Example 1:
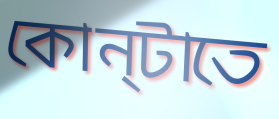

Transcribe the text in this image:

কোন্‌টাতে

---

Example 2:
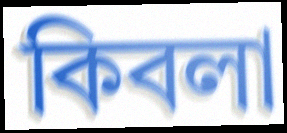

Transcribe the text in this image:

কিবলা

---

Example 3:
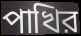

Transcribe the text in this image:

পাখির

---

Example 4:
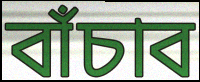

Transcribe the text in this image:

বাঁচাব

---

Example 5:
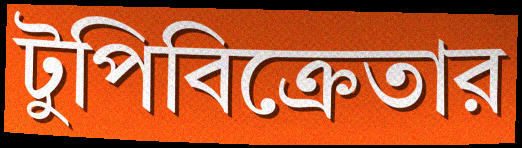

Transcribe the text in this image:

টুপিবিক্রেতার